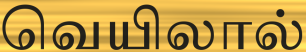
வெயிலால்